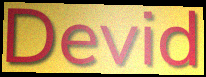
Devid